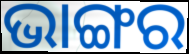
ଭାଙ୍ଗର